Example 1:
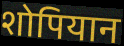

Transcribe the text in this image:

शोपियान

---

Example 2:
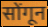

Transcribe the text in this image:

सोंगून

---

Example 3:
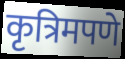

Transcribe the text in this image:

कृत्रिमपणे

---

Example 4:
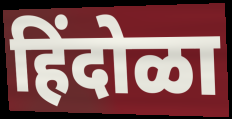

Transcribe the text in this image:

हिंदोळा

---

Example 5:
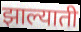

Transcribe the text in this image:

झाल्याती